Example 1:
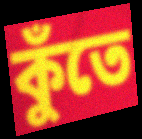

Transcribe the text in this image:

কুঁতে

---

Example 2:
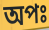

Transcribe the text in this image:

অপঃ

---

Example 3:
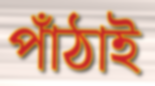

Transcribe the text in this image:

পাঁঠাই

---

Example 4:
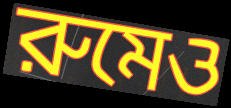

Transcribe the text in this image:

রুমেও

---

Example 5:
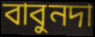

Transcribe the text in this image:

বাবুনদা